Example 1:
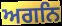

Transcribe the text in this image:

ਅਗਨਿ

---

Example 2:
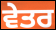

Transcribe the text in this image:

ਵੇਤਰ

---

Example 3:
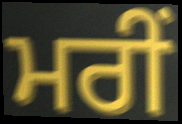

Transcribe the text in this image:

ਮਰੀਂ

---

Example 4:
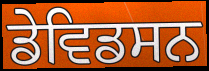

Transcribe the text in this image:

ਡੇਵਿਡਸਨ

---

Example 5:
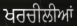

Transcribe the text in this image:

ਖਰਚੀਲੀਆਂ